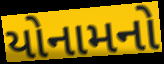
યોનામનો